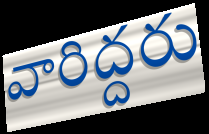
వారిద్దరు